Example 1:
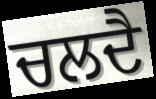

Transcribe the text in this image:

ਚਲਦੈ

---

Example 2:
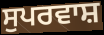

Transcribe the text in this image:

ਸੁਪਰਵਾਸ਼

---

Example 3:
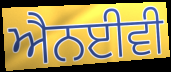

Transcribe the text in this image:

ਐਨਈਵੀ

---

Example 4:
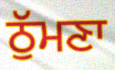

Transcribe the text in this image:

ਠੁੱਮਣਾ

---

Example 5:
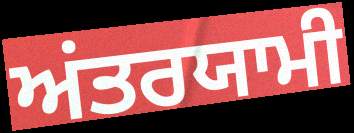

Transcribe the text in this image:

ਅਂਤਰਯਾਮੀ